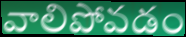
వాలిపోవడం